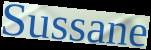
Sussane